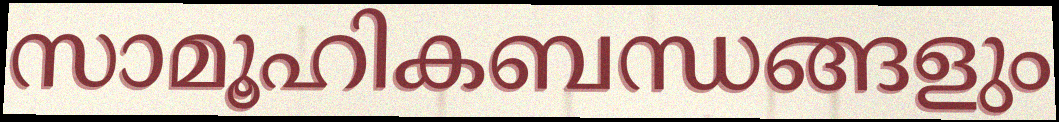
സാമൂഹികബന്ധങ്ങളും